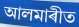
আলমাৰীত